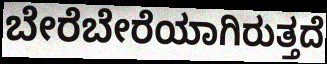
ಬೇರೆಬೇರೆಯಾಗಿರುತ್ತದೆ